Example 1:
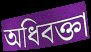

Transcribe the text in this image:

অধিবক্তা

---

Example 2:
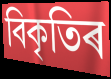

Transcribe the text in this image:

বিকৃতিৰ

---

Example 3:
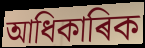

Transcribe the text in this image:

আধিকাৰিক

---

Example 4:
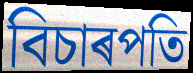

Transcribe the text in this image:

বিচাৰপতি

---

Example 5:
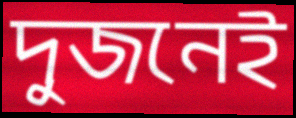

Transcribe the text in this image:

দুজনেই